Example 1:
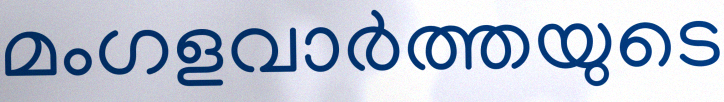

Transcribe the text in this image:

മംഗളവാർത്തയുടെ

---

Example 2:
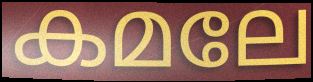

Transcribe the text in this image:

കമലേ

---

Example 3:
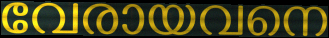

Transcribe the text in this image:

വേരായവനെ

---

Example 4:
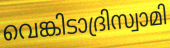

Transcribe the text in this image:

വെങ്കിടാദ്രിസ്വാമി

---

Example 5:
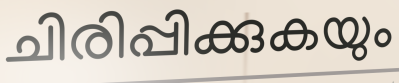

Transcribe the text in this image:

ചിരിപ്പിക്കുകയും